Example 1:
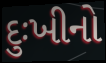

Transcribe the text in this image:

દુઃખીનો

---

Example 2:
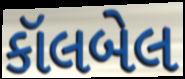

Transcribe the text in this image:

કૉલબેલ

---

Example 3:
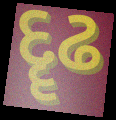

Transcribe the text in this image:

દૄઢ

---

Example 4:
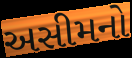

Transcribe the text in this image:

અસીમનો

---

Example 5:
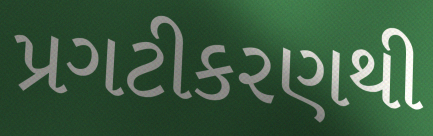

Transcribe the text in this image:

પ્રગટીકરણથી